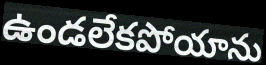
ఉండలేకపోయాను